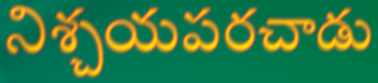
నిశ్చయపరచాడు